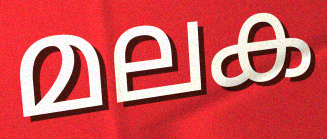
മലക